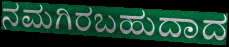
ನಮಗಿರಬಹುದಾದ